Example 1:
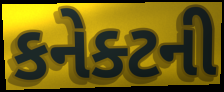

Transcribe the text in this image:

કનેક્ટની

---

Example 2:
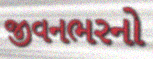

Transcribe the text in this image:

જીવનભરનો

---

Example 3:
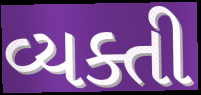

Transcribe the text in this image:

વ્યક્તી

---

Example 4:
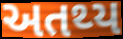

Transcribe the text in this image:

અતથ્ય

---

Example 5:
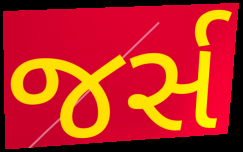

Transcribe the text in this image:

જર્સ